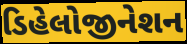
ડિહેલોજીનેશન